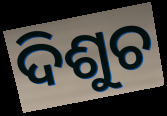
ଦିଶୁଚ